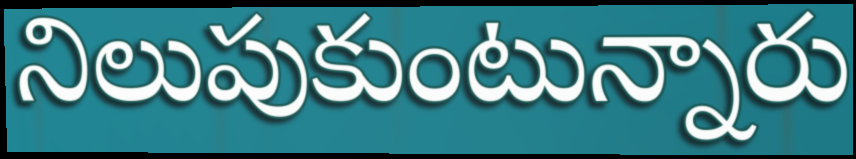
నిలుపుకుంటున్నారు